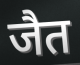
जैत